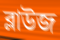
ব্লাউজ